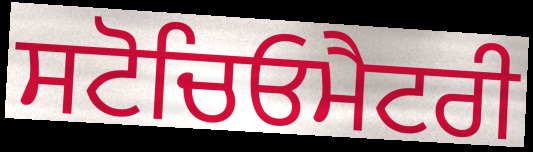
ਸਟੋਚਿਓਮੈਟਰੀ